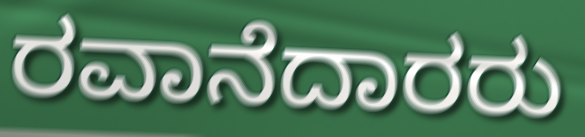
ರವಾನೆದಾರರು